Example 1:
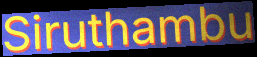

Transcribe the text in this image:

Siruthambu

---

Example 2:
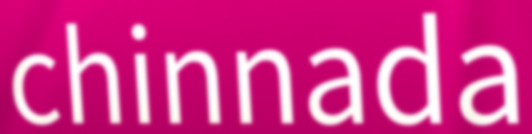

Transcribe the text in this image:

chinnada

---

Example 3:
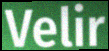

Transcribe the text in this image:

Velir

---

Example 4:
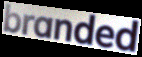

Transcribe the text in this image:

branded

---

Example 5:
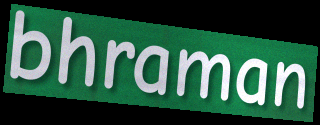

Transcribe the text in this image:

bhraman